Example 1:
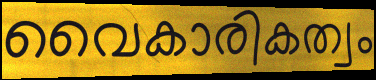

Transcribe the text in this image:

വൈകാരികത്വം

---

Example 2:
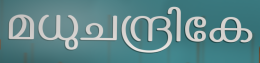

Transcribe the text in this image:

മധുചന്ദ്രികേ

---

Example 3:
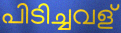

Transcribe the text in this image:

പിടിച്ചവള്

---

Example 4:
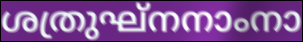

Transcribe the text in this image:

ശത്രുഘ്നനാംനാ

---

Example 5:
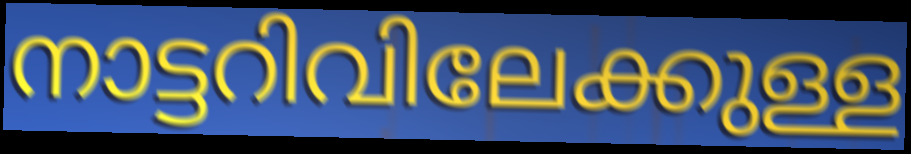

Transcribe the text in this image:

നാട്ടറിവിലേക്കുള്ള